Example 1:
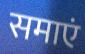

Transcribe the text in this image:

समाएं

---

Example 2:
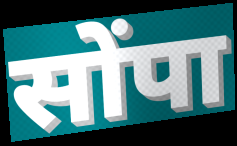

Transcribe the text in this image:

सोंपा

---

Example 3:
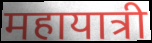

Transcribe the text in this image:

महायात्री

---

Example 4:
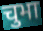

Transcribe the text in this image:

चुभा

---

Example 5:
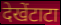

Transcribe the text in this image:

देखेंटाटा